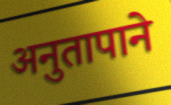
अनुतापाने